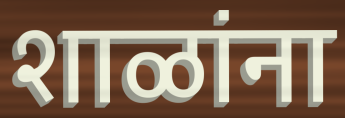
शाळांना